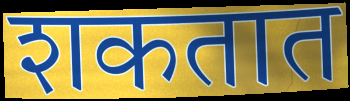
शकतात